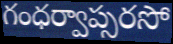
గంధర్వాప్సరసో